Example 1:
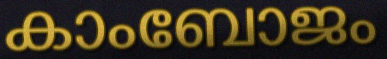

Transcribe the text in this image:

കാംബോജം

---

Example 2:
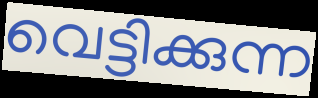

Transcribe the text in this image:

വെട്ടിക്കുന്ന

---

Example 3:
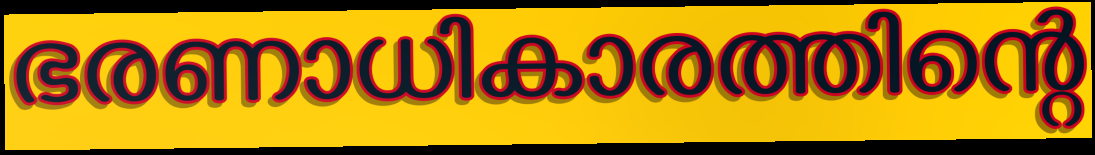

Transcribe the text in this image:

ഭരണാധികാരത്തിന്റെ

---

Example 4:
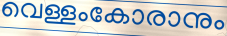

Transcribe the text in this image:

വെള്ളംകോരാനും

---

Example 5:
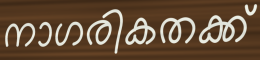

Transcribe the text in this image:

നാഗരികതക്ക്